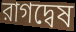
রাগদ্বেষ